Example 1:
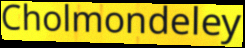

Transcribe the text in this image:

Cholmondeley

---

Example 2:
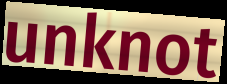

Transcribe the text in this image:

unknot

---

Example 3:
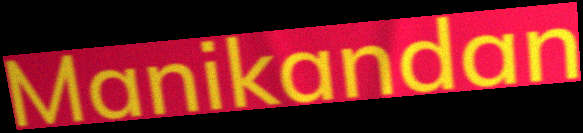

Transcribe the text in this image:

Manikandan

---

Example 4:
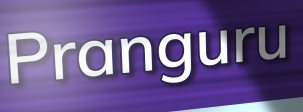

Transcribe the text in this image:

Pranguru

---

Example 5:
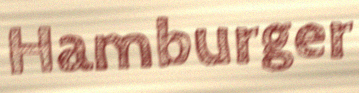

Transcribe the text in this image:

Hamburger